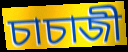
চাচাজী